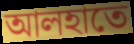
আলহাতে